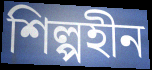
শিল্পহীন